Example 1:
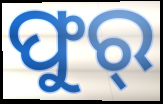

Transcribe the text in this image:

ଫୁର୍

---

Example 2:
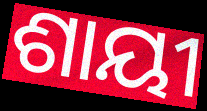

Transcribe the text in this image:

ଶାୟୀ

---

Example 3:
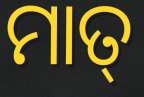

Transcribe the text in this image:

ମାତ୍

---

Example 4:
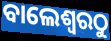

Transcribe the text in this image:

ବାଲେଶ୍ୱରଠୁ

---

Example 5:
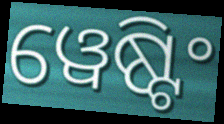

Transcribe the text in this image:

ୱେଷ୍ଟିଂ